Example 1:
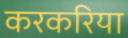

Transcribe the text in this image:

करकरिया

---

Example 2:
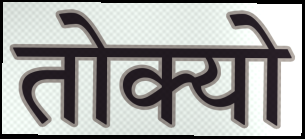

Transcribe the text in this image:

तोक्यो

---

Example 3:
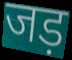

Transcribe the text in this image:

जड़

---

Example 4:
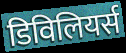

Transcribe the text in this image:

डिविलियर्स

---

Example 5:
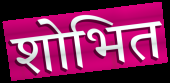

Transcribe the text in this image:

शोभित